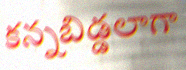
కన్నబిడ్డలాగా